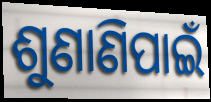
ଶୁଣାଣିପାଇଁ